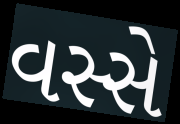
વસ્સે